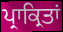
ਪ੍ਰਾਕ੍ਰਿਤਾਂ